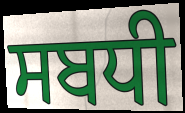
ਸਬਧੀ